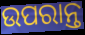
ଉପରାନ୍ତ